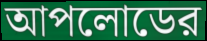
আপলোডের